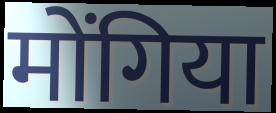
मोंगिया